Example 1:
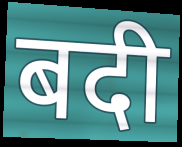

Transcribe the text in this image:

बदी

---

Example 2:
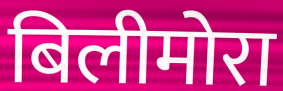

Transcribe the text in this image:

बिलीमोरा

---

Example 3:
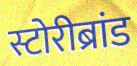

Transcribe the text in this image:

स्टोरीब्रांड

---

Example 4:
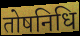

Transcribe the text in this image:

तोषनिधि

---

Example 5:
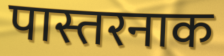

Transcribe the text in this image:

पास्तरनाक